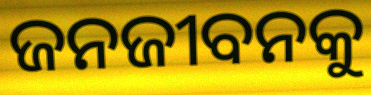
ଜନଜୀବନକୁ